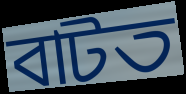
বাটত